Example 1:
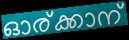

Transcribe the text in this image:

ഓര്ക്കാന്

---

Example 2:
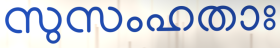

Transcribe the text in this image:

സുസംഹതാഃ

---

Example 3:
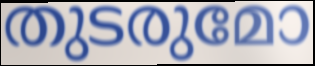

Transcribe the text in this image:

തുടരുമോ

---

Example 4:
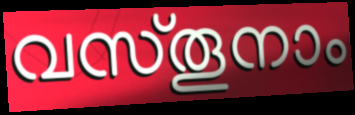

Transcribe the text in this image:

വസ്തൂനാം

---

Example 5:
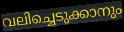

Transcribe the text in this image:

വലിച്ചെടുക്കാനും